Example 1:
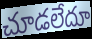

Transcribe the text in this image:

చూడలేదూ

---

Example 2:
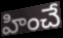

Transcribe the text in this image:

హించే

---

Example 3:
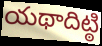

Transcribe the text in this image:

యథాదిట్ఠి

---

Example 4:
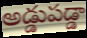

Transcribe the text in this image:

అడ్డుపడ్డా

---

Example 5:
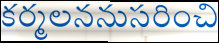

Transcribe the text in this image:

కర్మలననుసరించి